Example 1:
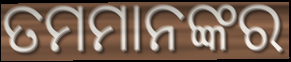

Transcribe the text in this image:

ତମମାନଙ୍କର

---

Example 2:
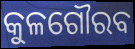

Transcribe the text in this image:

କୁଳଗୌରବ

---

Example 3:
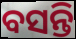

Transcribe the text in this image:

ବସନ୍ତି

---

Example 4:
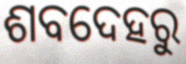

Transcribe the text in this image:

ଶବଦେହରୁ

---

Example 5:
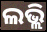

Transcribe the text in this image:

ଲଭ୍ଲି